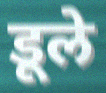
डूले